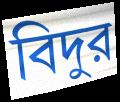
বিদুর